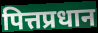
पित्तप्रधान